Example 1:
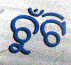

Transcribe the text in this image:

ଚୁଁଟି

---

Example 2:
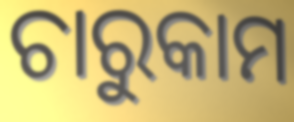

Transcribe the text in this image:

ଚାରୁକାମ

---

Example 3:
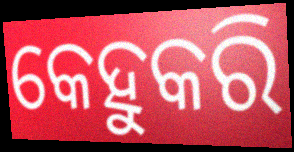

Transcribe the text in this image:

କେହୁକରି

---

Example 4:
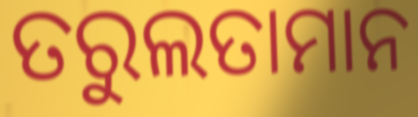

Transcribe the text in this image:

ତରୁଲତାମାନ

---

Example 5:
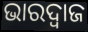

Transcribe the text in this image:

ଭାରଦ୍ୱାଜ